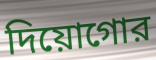
দিয়োগোর